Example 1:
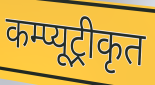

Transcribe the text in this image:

कम्प्यूट्रीकृत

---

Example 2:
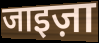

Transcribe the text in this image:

जाइज़ा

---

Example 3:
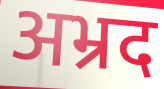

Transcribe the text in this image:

अभ्रद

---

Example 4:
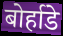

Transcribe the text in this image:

बोर्हाडे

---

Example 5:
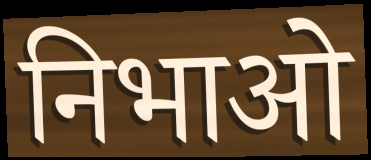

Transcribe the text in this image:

निभाओ